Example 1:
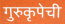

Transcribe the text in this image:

गुरुकृपेची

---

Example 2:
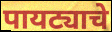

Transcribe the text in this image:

पायट्याचे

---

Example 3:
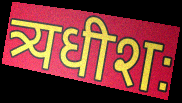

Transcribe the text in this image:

त्र्यधीशः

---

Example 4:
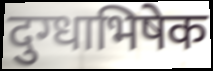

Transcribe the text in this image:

दुग्धाभिषेक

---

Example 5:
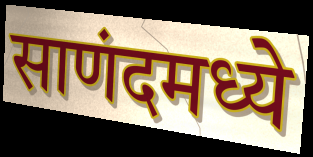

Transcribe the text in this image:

साणंदमध्ये